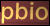
pbio